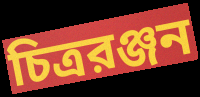
চিত্ররঞ্জন